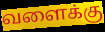
வளைக்கு